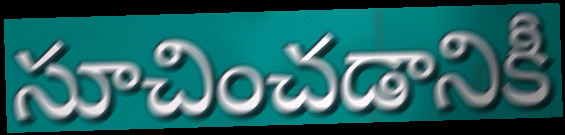
సూచించడానికీ